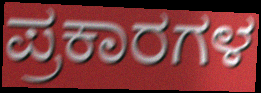
ಪ್ರಕಾರಗಳ